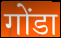
गोंडा